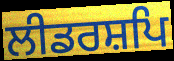
ਲੀਡਰਸ਼ਪਿ